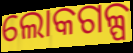
ଲୋକଗଳ୍ପ